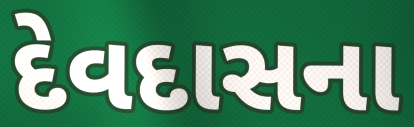
દેવદાસના